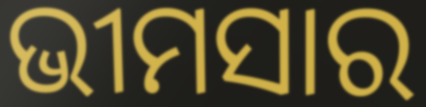
ଭୀମସାର